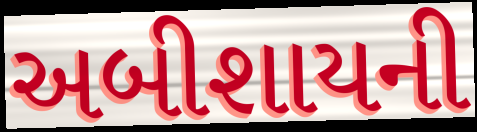
અબીશાયની